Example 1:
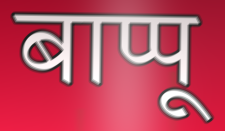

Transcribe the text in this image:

बाप्पू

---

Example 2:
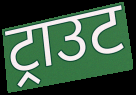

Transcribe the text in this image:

ट्राउट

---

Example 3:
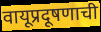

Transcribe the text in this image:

वायूप्रदूषणाची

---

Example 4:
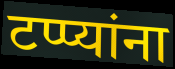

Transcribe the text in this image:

टप्प्यांना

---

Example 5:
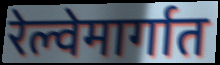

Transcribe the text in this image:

रेल्वेमार्गात